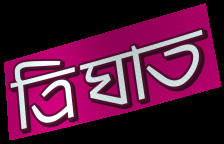
ত্ৰিঘাত